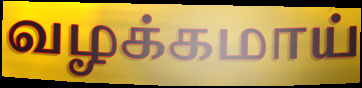
வழக்கமாய்